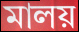
মালয়